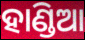
ହାଣ୍ଡିଆ